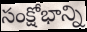
సంక్షోభాన్ని